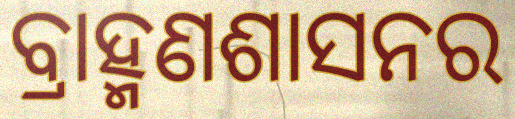
ବ୍ରାହ୍ମଣଶାସନର